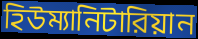
হিউম্যানিটারিয়ান